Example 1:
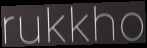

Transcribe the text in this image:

rukkho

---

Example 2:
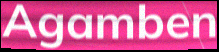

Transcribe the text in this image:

Agamben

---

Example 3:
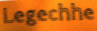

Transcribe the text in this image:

Legechhe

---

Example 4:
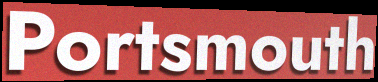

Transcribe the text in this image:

Portsmouth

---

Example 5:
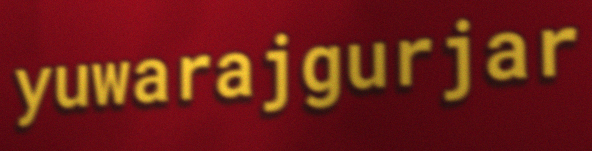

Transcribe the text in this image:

yuwarajgurjar